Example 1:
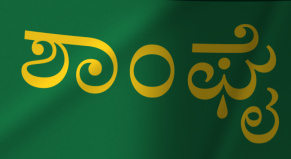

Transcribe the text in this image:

ಶಾಂಘೈ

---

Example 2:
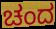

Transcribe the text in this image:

ಚಂದ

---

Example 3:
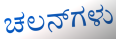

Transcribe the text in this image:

ಚಲನ್‌ಗಳು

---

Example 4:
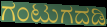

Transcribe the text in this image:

ಗಂಟುಗದಡಿ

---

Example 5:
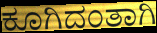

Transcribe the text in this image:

ಕೂಗಿದಂತಾಗಿ